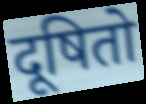
दूषितो